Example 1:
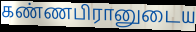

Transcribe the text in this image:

கண்ணபிரானுடைய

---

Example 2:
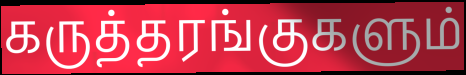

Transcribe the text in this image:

கருத்தரங்குகளும்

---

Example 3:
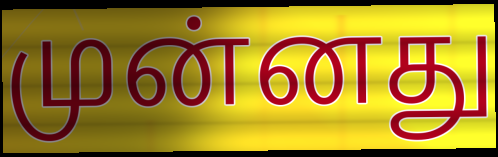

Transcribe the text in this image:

முன்னது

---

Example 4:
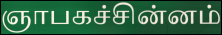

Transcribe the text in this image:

ஞாபகச்சின்னம்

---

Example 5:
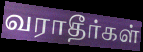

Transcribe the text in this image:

வராதீர்கள்